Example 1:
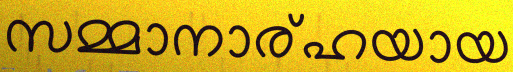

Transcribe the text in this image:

സമ്മാനാര്ഹയായ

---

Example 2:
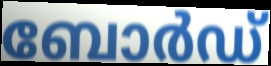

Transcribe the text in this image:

ബോർഡ്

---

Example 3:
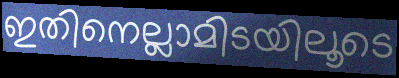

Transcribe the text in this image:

ഇതിനെല്ലാമിടയിലൂടെ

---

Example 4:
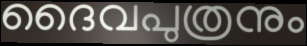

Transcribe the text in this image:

ദൈവപുത്രനും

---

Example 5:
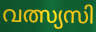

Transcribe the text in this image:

വത്സ്യസി